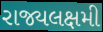
રાજ્યલક્ષમી